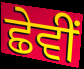
ਛੇਵੀਂ